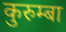
कुरुम्बा